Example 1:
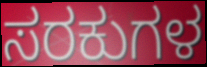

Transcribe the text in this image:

ಸರಕುಗಳ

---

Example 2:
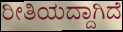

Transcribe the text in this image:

ರೀತಿಯದ್ದಾಗಿದೆ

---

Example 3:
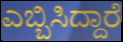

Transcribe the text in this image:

ಎಬ್ಬಿಸಿದ್ದಾರೆ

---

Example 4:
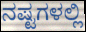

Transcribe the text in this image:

ನಷ್ಟಗಳಲ್ಲಿ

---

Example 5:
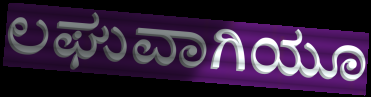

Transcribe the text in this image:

ಲಘುವಾಗಿಯೂ